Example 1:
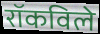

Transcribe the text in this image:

रॉकविले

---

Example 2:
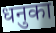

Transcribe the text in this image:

धनुका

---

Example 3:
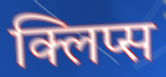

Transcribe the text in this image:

क्लिप्स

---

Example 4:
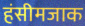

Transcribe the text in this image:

हंसीमजाक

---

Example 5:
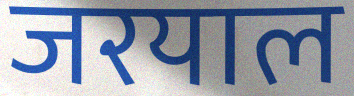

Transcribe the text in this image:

जरयाल